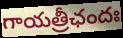
గాయత్రీఛందః